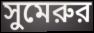
সুমেরুর